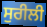
ਸੁਰੀਲੀ